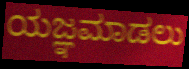
ಯಜ್ಞಮಾಡಲು